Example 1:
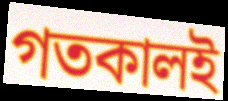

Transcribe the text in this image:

গতকালই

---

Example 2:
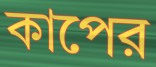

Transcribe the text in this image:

কাপের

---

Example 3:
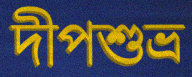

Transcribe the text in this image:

দীপশুভ্র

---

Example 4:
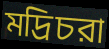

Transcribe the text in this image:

মদ্রিচরা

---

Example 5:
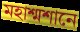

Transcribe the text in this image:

মহাশ্মশানে